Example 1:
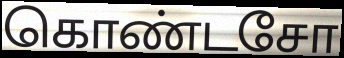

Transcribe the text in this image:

கொண்டசோ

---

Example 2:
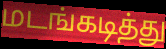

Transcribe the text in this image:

மடங்கடித்து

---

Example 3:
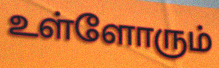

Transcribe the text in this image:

உள்ளோரும்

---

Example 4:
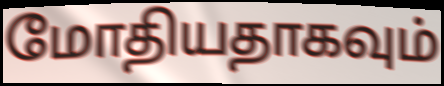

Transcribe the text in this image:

மோதியதாகவும்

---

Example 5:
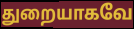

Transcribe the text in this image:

துறையாகவே